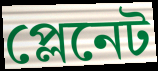
প্লেনেট